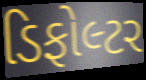
ડિફોલ્ટર